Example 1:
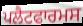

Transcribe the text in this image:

ਪਲੈਟਫਾਰਮਸ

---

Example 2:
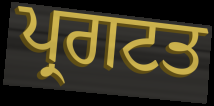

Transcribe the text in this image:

ਪ੍ਰਗਟਤ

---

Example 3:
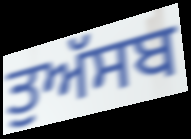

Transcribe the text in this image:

ਤੁਅੱਸਬ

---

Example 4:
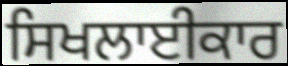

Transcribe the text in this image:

ਸਿਖਲਾਈਕਾਰ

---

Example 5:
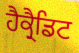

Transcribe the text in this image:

ਹੈਕ੍ਰੈਡਿਟ